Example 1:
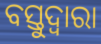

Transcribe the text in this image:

ବସ୍ତୁଦ୍ଵାରା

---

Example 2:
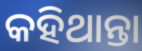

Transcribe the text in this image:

କହିଥାନ୍ତା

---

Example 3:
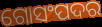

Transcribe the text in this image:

ଗୋସଂପଦର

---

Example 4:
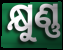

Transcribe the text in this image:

କ୍ଷୁଣ୍ଣ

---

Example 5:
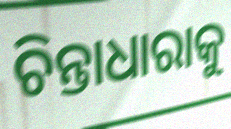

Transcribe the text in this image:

ଚିନ୍ତାଧାରାକୁ